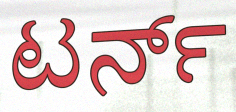
ಟರ್ನ್